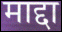
माद्दा